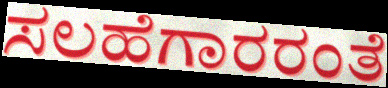
ಸಲಹೆಗಾರರಂತೆ